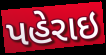
પહેરાઇ